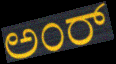
ಅಂರ್